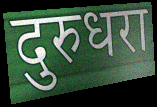
दुरुधरा